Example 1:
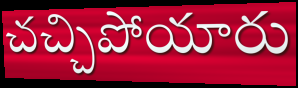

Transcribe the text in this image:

చచ్చిపోయారు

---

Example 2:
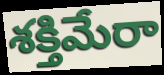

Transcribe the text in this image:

శక్తిమేరా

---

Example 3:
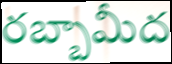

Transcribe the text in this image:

రబ్బామీద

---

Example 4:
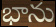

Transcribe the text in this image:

భాను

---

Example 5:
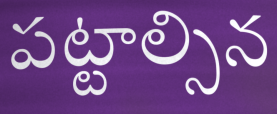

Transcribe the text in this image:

పట్టాల్సిన